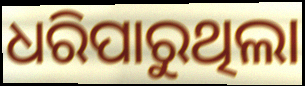
ଧରିପାରୁଥିଲା